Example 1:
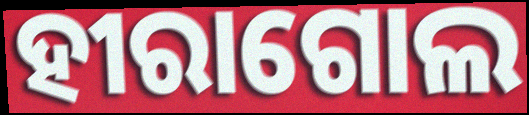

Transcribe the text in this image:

ହୀରାଗୋଲ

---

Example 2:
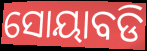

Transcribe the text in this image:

ସୋୟାବଡି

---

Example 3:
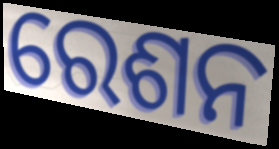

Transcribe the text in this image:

ରେଶନ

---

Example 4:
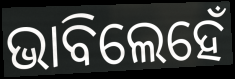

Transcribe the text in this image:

ଭାବିଲେହେଁ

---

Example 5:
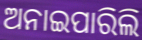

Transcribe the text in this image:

ଅନାଇପାରିଲି